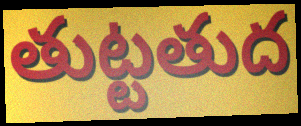
తుట్టతుద